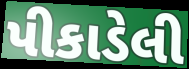
પીકાડેલી